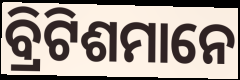
ବ୍ରିଟିଶମାନେ